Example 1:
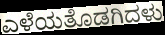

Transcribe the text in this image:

ಎಳೆಯತೊಡಗಿದಳು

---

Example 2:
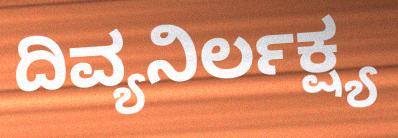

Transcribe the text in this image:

ದಿವ್ಯನಿರ್ಲಕ್ಷ್ಯ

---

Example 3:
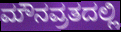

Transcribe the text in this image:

ಮೌನವ್ರತದಲ್ಲಿ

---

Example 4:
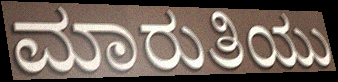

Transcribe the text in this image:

ಮಾರುತಿಯು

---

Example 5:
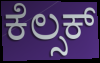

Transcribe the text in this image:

ಕೆಲ್ಸಕ್